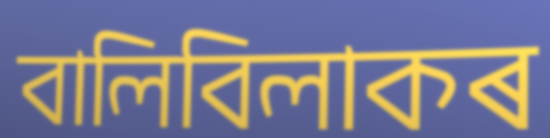
বালিবিলাকৰ